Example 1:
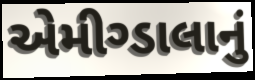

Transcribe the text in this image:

એમીગ્ડાલાનું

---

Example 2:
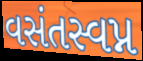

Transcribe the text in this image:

વસંતસ્વપ્ન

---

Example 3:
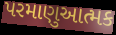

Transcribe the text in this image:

પરમાણુઆત્મક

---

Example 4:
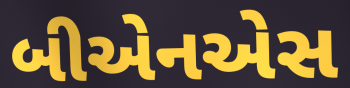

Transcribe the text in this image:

બીએનએસ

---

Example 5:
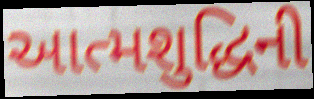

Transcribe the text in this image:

આત્મશુદ્ધિની